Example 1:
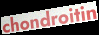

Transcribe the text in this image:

chondroitin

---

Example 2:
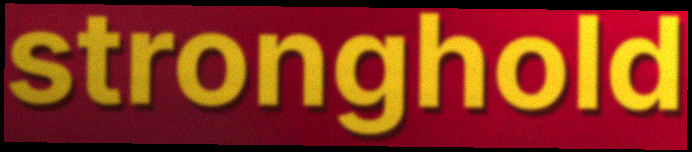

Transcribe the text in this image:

stronghold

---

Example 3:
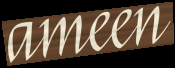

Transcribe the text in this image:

ameen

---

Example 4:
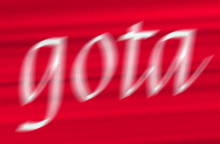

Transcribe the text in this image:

gota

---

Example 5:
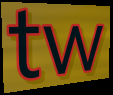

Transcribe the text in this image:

tw